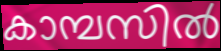
കാമ്പസിൽ